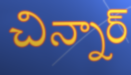
చిన్నార్